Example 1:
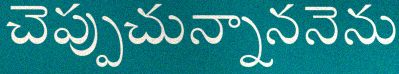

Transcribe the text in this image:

చెప్పుచున్నాననెను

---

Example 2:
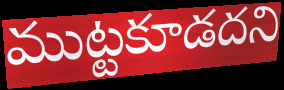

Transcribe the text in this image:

ముట్టకూడదని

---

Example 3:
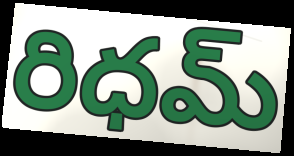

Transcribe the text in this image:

రిధమ్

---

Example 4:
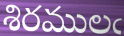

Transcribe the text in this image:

శిరములఁ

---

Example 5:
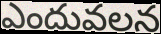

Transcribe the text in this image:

ఎందువలన